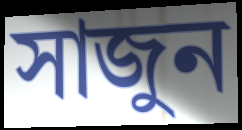
সাজুন